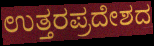
ಉತ್ತರಪ್ರದೇಶದ